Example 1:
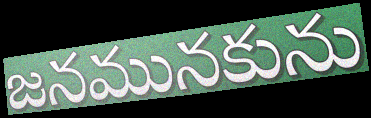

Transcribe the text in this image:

జనమునకును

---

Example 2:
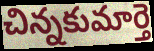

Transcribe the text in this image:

చిన్నకుమార్తె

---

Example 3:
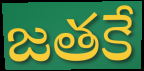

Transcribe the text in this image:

జతకే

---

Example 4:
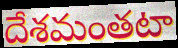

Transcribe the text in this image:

దేశమంతటా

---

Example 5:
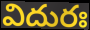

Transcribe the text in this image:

విదురః